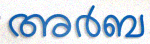
അർബ